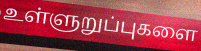
உள்ளுறுப்புகளை